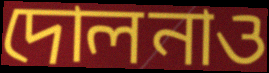
দোলনাও